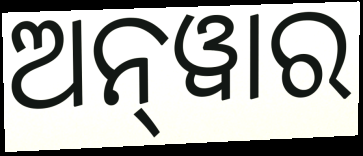
ଅନ୍‌ୱାର